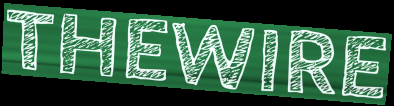
THEWIRE